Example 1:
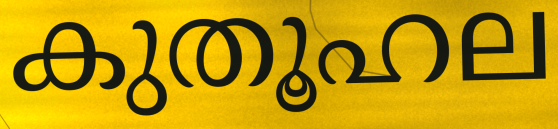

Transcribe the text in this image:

കുതൂഹല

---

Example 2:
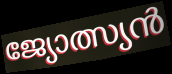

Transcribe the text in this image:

ജ്യോത്സ്യൻ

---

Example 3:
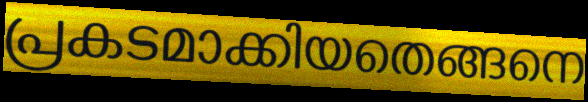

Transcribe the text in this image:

പ്രകടമാക്കിയതെങ്ങനെ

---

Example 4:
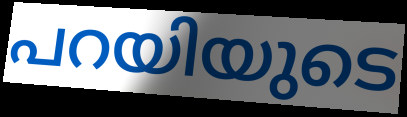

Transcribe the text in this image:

പറയിയുടെ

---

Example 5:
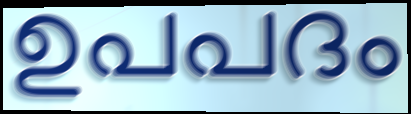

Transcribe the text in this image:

ഉപപദം